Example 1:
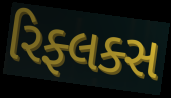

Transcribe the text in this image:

રિફ્લક્સ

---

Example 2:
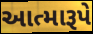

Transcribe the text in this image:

આત્મારૂપે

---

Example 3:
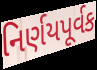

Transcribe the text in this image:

નિર્ણયપૂર્વક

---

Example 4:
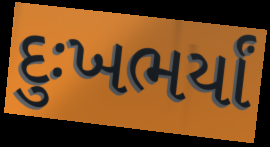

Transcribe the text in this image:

દુઃખભર્યાં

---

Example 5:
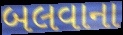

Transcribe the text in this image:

બલવાના